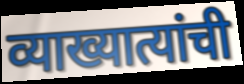
व्याख्यात्यांची